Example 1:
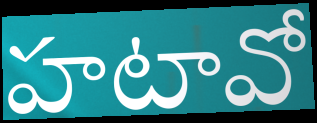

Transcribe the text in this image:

హటావో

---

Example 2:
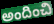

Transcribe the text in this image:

అందించి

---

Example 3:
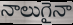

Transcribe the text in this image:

నాలుగైనా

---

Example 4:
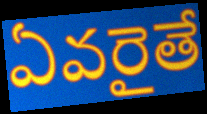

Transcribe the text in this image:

ఏవరైతే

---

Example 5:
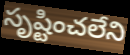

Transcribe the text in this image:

సృష్టించలేని